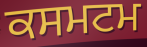
ਕਸਮਟਮ